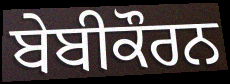
ਬੇਬੀਕੌਰਨ